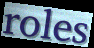
roles